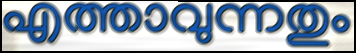
എത്താവുന്നതും